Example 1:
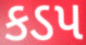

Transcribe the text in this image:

કડપ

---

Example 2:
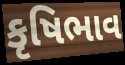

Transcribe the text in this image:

કૃષિભાવ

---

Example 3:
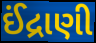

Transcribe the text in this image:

ઈંદ્રાણી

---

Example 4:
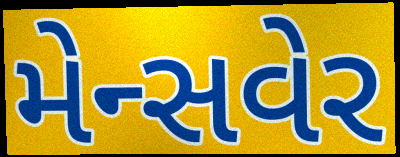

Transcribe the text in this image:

મેન્સવેર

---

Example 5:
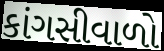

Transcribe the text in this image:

કાંગસીવાળો